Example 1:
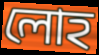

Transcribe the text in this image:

লোহ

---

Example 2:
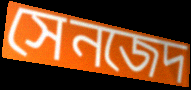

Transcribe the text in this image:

সেনজেদ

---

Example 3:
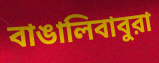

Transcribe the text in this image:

বাঙালিবাবুরা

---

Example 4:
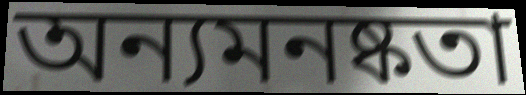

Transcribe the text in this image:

অন্যমনষ্কতা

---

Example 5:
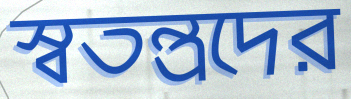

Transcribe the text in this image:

স্বতন্ত্রদের